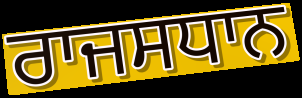
ਰਾਜਸਧਾਨ